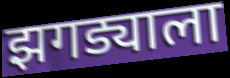
झगड्याला